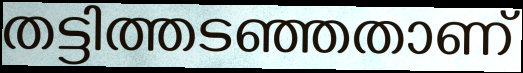
തട്ടിത്തടഞ്ഞതാണ്